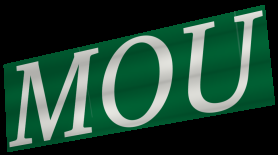
MOU